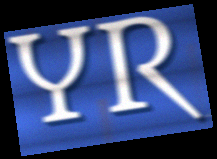
YR